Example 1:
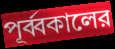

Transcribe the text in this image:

পূর্ব্বকালের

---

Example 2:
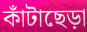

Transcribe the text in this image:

কাঁটাছেড়া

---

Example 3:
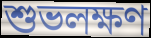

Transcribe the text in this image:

শুভলক্ষণ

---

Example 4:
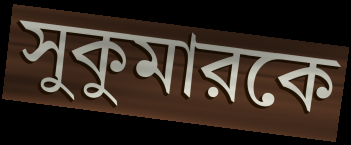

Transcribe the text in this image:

সুকুমারকে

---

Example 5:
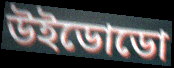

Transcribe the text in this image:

উইডোডো